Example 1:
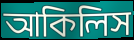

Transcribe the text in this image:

আকিলিস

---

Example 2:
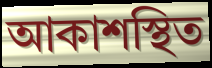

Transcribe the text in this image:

আকাশস্থিত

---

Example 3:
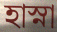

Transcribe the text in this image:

হাস্না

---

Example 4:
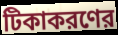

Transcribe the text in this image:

টিকাকরণের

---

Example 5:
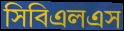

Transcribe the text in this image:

সিবিএলএস